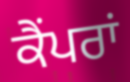
ਕੈਂਪਰਾਂ